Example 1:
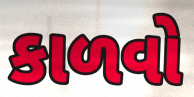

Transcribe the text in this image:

કાળવો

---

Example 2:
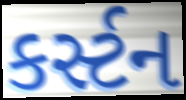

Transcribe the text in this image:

કર્સ્ટન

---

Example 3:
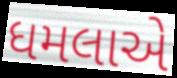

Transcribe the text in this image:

ધમલાએ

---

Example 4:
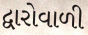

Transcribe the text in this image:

દ્વારોવાળી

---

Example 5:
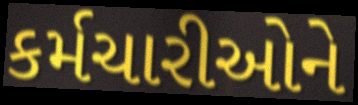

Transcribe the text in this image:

કર્મચારીઓને